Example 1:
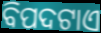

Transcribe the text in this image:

ବିପଦଟାଏ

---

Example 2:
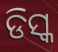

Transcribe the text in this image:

ଡିସ୍କ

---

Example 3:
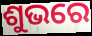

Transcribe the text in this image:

ଶୁଭରେ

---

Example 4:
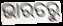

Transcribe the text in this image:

ଭାରତରୁ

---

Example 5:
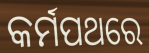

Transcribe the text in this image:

କର୍ମପଥରେ